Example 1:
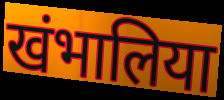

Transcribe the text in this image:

खंभालिया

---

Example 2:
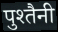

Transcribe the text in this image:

पुश्तैनी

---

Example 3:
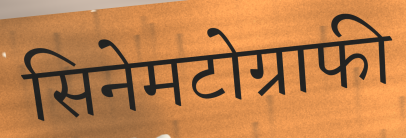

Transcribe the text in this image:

सिनेमटोग्राफी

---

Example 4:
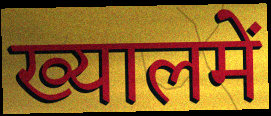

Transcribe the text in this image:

ख्यालमें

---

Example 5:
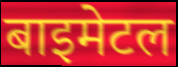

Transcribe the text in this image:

बाइमेटल